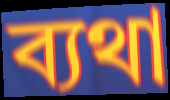
ব্যথা